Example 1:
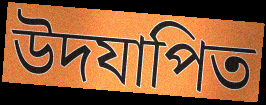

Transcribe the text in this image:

উদযাপিত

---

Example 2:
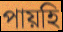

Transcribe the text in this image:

পায়হি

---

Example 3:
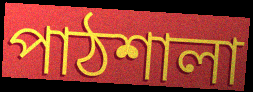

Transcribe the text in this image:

পাঠশালা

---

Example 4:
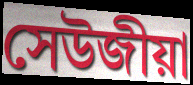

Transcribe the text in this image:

সেউজীয়া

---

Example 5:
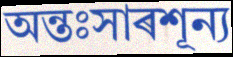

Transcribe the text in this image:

অন্তঃসাৰশূন্য